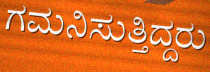
ಗಮನಿಸುತ್ತಿದ್ದರು